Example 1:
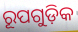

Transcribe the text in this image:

ରୂପଗୁଡ଼ିକ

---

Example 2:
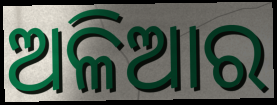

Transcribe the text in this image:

ଅଳିଆର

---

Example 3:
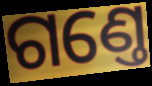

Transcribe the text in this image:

ଗଣ୍ତେ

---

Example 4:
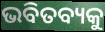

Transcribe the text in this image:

ଭବିତବ୍ୟକୁ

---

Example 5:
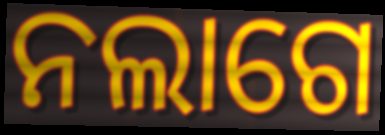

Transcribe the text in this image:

ନଲାଗେ